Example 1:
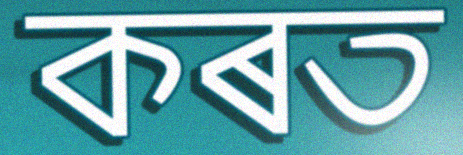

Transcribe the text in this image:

কৰত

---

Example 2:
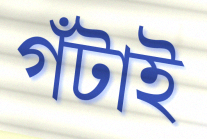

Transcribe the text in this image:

গঁটাই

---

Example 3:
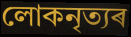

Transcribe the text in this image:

লোকনৃত্যৰ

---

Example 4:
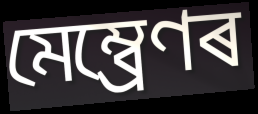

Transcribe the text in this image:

মেম্ব্ৰেণৰ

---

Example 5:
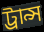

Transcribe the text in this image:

ট্ৰান্স